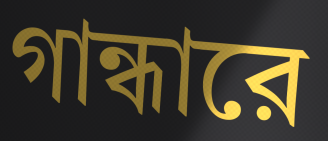
গান্ধারে